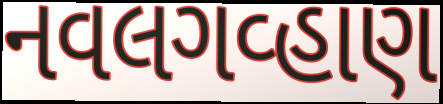
નવલગવ્હાણ